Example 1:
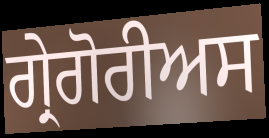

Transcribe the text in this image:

ਗ੍ਰੇਗੋਰੀਅਸ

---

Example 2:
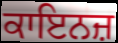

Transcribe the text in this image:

ਕਾਇਨਜ਼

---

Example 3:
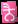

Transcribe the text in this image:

ਨੈ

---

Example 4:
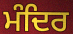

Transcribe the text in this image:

ਮੰਦਿਰ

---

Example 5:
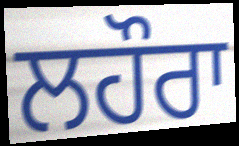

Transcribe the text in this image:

ਲਹੌਰਾ